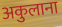
अकुलाना